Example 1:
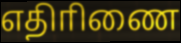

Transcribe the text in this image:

எதிரிணை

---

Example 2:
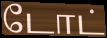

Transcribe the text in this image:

டோட்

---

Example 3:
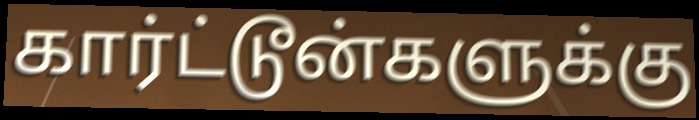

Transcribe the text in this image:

கார்ட்டூன்களுக்கு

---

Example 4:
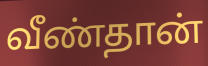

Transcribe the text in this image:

வீண்தான்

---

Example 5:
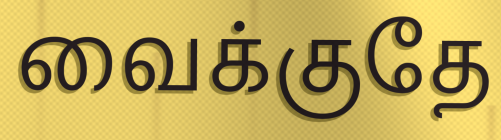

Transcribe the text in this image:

வைக்குதே